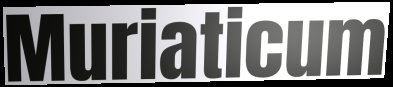
Muriaticum